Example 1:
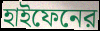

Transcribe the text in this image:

হাইফেনের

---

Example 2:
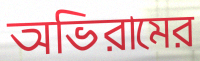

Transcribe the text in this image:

অভিরামের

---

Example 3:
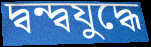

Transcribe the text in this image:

দ্বন্দ্বযুদ্ধে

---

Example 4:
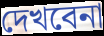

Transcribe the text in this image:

দেখবেনা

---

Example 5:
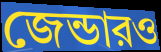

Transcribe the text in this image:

জেন্ডারও